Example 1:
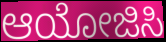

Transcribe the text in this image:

ಆಯೋಜಿಸಿ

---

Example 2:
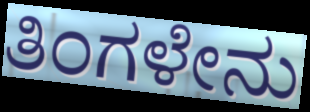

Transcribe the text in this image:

ತಿಂಗಳೇನು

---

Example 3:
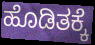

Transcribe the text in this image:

ಹೊಡಿತಕ್ಕೆ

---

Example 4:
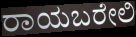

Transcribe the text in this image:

ರಾಯಬರೇಲಿ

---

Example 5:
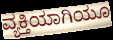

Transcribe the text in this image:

ವ್ಯಕ್ತಿಯಾಗಿಯೂ